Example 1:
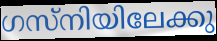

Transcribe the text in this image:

ഗസ്നിയിലേക്കു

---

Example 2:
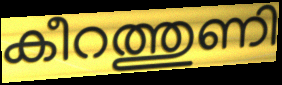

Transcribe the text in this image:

കീറത്തുണി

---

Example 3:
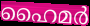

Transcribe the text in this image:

ഹൈമർ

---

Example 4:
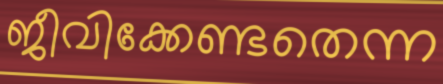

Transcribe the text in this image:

ജീവിക്കേണ്ടതെന്ന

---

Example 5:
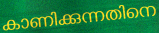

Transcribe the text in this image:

കാണിക്കുന്നതിനെ